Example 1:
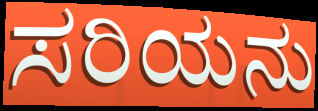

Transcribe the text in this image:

ಸರಿಯನು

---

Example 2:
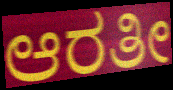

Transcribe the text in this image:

ಆರತೀ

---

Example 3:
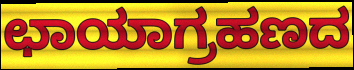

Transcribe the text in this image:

ಛಾಯಾಗ್ರಹಣದ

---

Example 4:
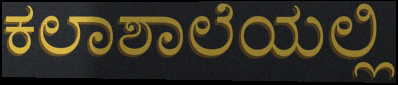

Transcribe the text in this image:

ಕಲಾಶಾಲೆಯಲ್ಲಿ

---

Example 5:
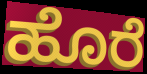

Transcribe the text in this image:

ಹೊರೆ